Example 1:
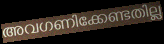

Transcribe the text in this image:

അവഗണിക്കേണ്ടതില്ല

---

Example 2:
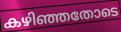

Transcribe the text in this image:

കഴിഞ്ഞതോടെ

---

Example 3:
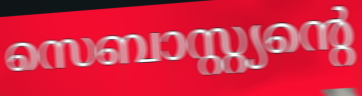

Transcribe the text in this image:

സെബാസ്റ്റ്യന്റെ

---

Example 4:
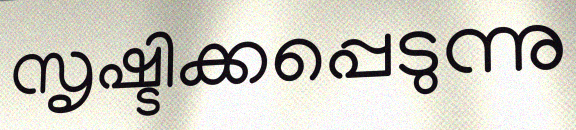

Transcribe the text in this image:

സൃഷ്ടിക്കപ്പെടുന്നു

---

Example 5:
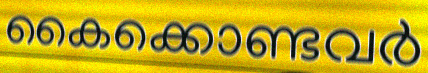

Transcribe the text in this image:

കൈക്കൊണ്ടവർ